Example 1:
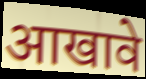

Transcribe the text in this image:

आखावे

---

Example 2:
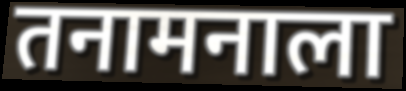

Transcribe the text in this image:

तनामनाला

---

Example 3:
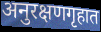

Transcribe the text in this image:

अनुरक्षणगृहात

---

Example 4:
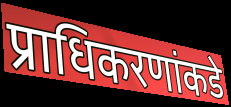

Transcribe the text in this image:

प्राधिकरणांकडे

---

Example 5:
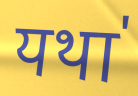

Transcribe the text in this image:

यथा॑